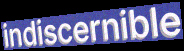
indiscernible